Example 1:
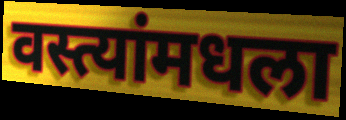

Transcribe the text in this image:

वस्त्यांमधला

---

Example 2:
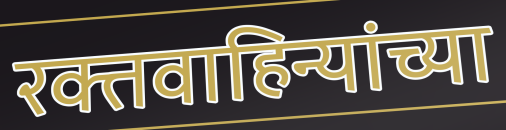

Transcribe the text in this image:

रक्तवाहिन्यांच्या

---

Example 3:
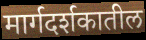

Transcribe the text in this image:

मार्गदर्शकातील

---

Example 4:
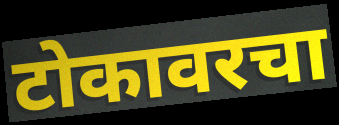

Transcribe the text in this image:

टोकावरचा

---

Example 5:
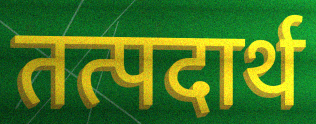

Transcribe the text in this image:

तत्पदार्थ